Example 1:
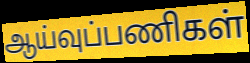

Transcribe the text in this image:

ஆய்வுப்பணிகள்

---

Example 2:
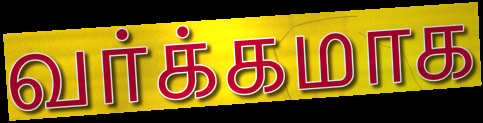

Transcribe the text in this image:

வர்க்கமாக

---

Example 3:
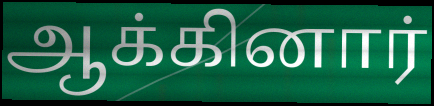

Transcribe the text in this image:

ஆக்கினார்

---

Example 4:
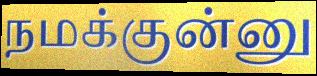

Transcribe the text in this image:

நமக்குன்னு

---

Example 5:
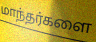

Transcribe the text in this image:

மாந்தர்களை